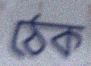
ঠেক